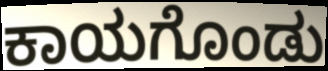
ಕಾಯಗೊಂಡು